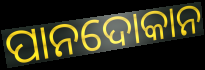
ପାନଦୋକାନ